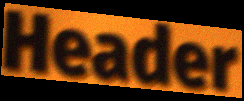
Header